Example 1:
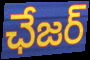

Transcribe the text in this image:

ఛేజర్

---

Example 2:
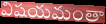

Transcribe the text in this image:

విషయమంతా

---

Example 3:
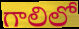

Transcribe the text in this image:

గాలిలో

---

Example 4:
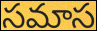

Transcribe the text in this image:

సమాస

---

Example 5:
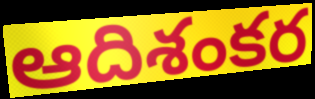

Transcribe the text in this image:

ఆదిశంకర